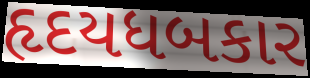
હૃદયધબકાર